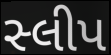
સ્લીપ